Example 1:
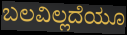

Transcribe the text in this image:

ಬಲವಿಲ್ಲದೆಯೂ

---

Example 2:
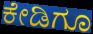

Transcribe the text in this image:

ಕೇಡಿಗೂ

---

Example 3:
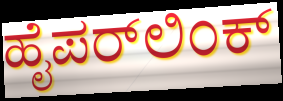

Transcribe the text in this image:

ಹೈಪರ್‌ಲಿಂಕ್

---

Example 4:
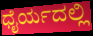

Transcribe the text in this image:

ಧೈರ್ಯದಲ್ಲಿ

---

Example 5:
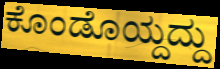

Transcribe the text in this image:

ಕೊಂಡೊಯ್ದದ್ದು